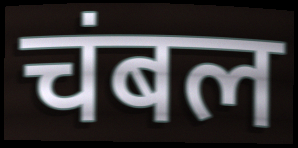
चंबल